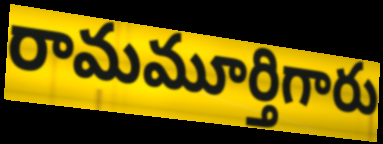
రామమూర్తిగారు